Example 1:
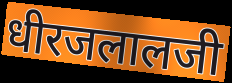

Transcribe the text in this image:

धीरजलालजी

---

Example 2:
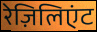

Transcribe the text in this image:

रेज़िलिएंट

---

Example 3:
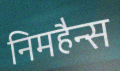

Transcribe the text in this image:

निमहैन्स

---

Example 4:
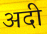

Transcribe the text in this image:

अदी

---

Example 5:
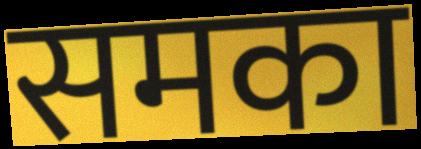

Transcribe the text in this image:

समका